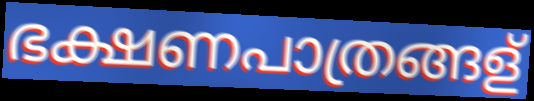
ഭക്ഷണപാത്രങ്ങള്